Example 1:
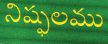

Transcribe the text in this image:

నిష్ఫలము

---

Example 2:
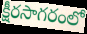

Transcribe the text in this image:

క్షీరసాగరంలో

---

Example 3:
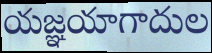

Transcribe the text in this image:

యజ్ఞయాగాదుల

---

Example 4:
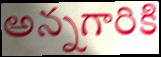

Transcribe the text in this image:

అన్నగారికి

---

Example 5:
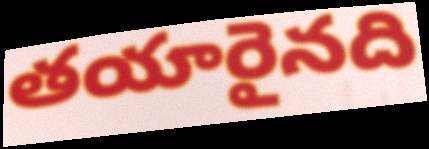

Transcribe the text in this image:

తయారైనది